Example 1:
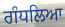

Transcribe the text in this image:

ਗੰਧਲਿਆ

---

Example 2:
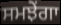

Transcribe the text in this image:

ਸਮਝੇਂਗਾ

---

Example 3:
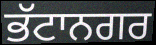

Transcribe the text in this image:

ਭੱਟਾਨਗਰ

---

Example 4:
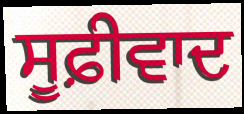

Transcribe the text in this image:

ਸੂਫ਼ੀਵਾਦ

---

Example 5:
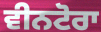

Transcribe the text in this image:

ਵੀਨਟੋਰਾ